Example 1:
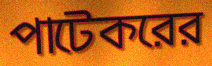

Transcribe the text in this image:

পাটেকরের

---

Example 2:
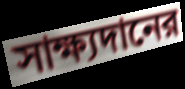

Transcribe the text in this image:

সাক্ষ্যদানের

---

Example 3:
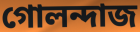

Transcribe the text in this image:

গোলন্দাজ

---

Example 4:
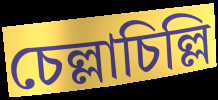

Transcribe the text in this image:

চেল্লাচিল্লি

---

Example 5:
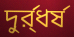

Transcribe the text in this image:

দুর্র্ধর্ষ